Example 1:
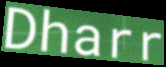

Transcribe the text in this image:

Dharr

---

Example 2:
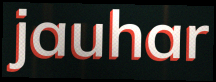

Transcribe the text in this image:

jauhar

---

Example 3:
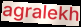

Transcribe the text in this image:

agralekh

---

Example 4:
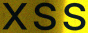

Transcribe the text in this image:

xss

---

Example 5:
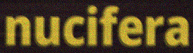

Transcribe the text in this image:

nucifera